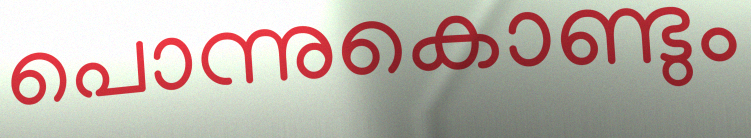
പൊന്നുകൊണ്ടും